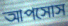
আপসোস